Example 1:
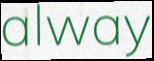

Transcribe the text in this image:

alway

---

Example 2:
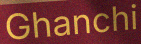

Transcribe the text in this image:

Ghanchi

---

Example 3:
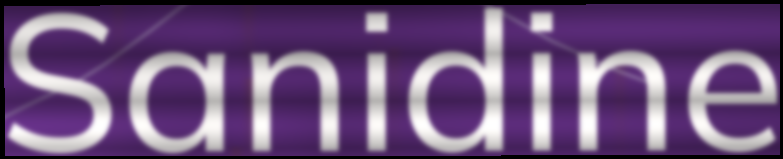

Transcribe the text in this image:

Sanidine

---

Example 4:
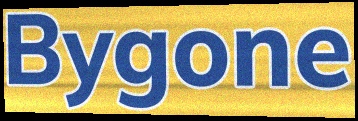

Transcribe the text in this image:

Bygone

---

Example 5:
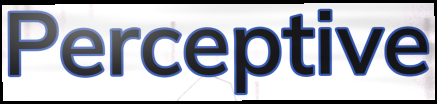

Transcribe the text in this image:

Perceptive